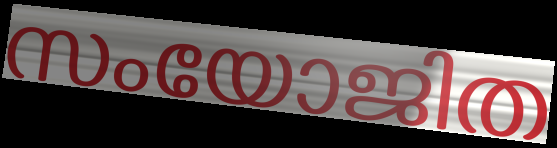
സംയോജിത